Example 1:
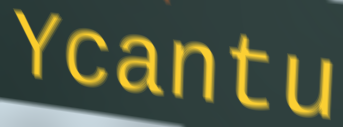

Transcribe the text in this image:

Ycantu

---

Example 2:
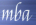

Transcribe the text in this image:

mba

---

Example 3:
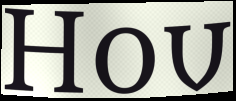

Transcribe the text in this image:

Hou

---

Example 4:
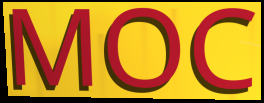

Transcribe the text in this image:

MOC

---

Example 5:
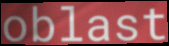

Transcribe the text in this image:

oblast